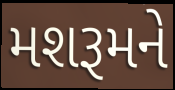
મશરૂમને